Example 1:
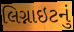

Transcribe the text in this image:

લિગ્નાઇટનું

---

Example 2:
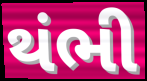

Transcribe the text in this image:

થંભી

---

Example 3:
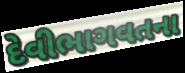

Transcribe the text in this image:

દેવીભાગવતના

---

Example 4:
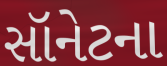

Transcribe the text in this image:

સૉનેટના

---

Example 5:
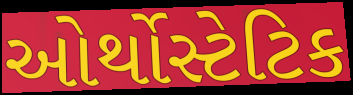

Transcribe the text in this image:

ઓર્થોસ્ટેટિક